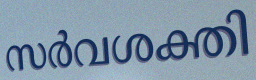
സർവശക്തി